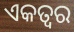
ଏକତ୍ବର